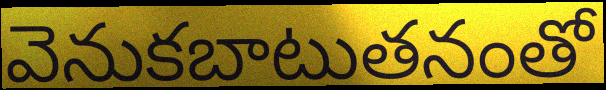
వెనుకబాటుతనంతో